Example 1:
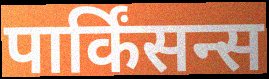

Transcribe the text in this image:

पार्किंसन्स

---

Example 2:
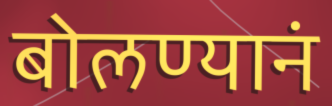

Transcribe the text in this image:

बोलण्यानं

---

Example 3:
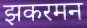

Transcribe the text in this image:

झकरमन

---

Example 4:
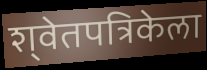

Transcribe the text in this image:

श्वेतपत्रिकेला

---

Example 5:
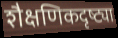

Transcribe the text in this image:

शैक्षणिकदृष्ट्या